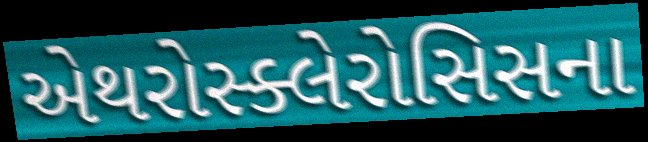
એથરોસ્ક્લેરોસિસના